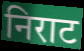
निराट